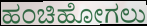
ಹಂಚಿಹೋಗಲು